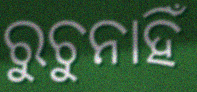
ରୁଚୁନାହିଁ